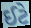
ઈટે